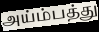
அய்ம்பத்து